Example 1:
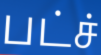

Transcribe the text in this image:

பட்ச்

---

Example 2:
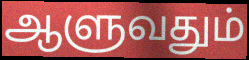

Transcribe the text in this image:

ஆளுவதும்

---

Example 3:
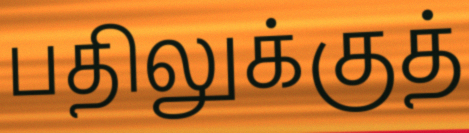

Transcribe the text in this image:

பதிலுக்குத்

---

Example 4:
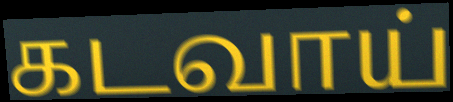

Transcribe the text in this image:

கடவாய்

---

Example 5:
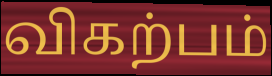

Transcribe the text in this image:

விகற்பம்